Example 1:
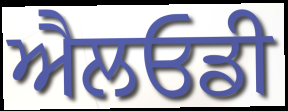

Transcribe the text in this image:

ਐਲਓਡੀ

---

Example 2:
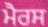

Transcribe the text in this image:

ਮੈਰਸ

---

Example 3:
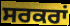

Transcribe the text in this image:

ਸਰਕਰਾਂ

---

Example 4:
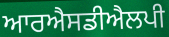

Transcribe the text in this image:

ਆਰਐਸਡੀਐਲਪੀ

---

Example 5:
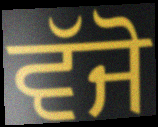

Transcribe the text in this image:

ਵੱਜੋ